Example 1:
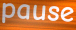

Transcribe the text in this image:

pause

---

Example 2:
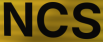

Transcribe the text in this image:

NCS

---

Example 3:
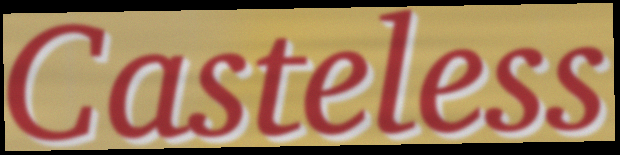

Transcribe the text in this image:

Casteless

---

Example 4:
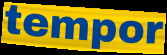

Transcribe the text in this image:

tempor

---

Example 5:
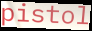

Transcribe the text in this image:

pistol